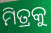
ମିତ୍ରକୁ